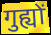
गुह्यों